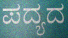
ಪದ್ಯದ